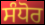
ਸੰਧੋਰ